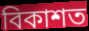
বিকাশত